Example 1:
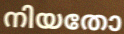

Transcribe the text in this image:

നിയതോ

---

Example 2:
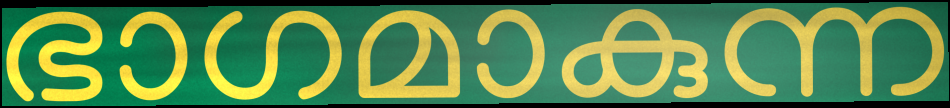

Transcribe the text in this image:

ഭാഗമാകുന്ന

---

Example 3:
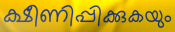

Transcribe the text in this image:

ക്ഷീണിപ്പിക്കുകയും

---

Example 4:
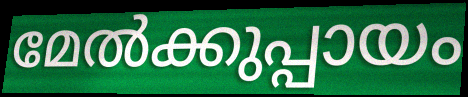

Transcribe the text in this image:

മേൽക്കുപ്പായം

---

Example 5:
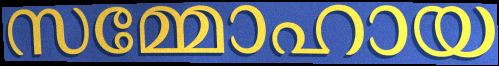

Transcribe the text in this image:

സമ്മോഹായ